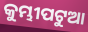
କୁମ୍ଭୀପଟୁଆ